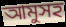
আমুসহ